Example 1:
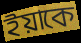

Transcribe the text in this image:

ইয়াকে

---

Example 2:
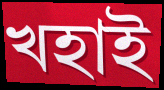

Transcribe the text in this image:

খহাই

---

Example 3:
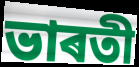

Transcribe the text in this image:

ভাৰতী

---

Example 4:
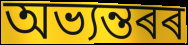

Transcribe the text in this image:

অভ্যন্তৰৰ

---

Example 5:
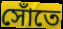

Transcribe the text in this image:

সোঁতে